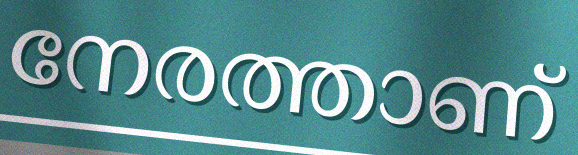
നേരത്താണ്